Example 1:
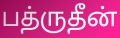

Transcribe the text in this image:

பத்ருதீன்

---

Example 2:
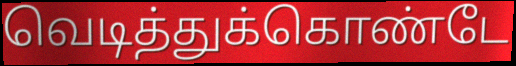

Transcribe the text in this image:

வெடித்துக்கொண்டே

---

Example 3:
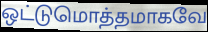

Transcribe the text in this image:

ஒட்டுமொத்தமாகவே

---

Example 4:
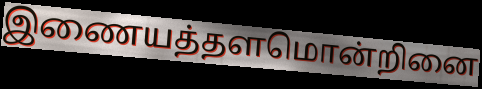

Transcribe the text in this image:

இணையத்தளமொன்றினை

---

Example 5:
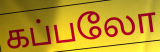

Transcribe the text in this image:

கப்பலோ